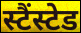
स्टैंस्टेड